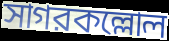
সাগরকল্লোল